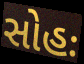
સોહઃ